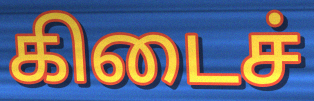
கிடைச்